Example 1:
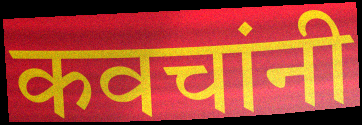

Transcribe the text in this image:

कवचांनी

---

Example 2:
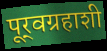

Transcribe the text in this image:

पूर्वग्रहाशी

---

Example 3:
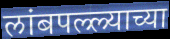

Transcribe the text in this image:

लांबपल्ल्याच्या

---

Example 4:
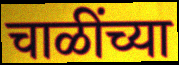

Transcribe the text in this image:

चाळींच्या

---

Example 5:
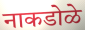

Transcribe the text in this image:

नाकडोळे